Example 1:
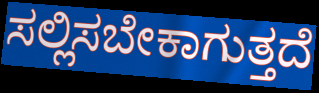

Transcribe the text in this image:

ಸಲ್ಲಿಸಬೇಕಾಗುತ್ತದೆ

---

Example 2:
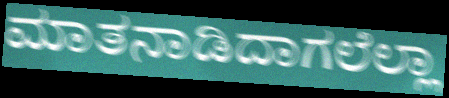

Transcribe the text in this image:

ಮಾತನಾಡಿದಾಗಲೆಲ್ಲಾ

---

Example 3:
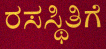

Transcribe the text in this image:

ರಸಸ್ಥಿತಿಗೆ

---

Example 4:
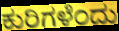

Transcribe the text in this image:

ಕುರಿಗಳೆಂದು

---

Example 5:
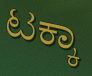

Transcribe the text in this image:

ಟಕ್ಕಾ